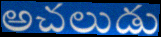
అచలుడు